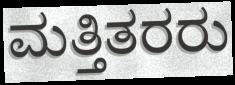
ಮತ್ತಿತರರು